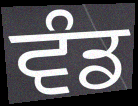
ਵੰਡ